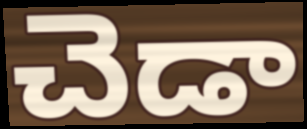
చెడా